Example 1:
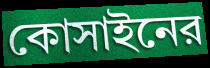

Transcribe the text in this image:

কোসাইনের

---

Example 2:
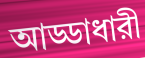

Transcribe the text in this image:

আড্ডাধারী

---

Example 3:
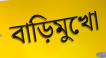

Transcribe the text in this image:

বাড়িমুখো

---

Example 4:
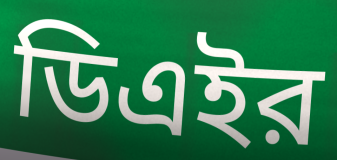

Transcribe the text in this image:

ডিএইর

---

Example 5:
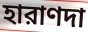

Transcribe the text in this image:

হারাণদা